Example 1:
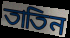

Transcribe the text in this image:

তাতিন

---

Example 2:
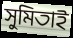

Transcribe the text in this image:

সুমিতাই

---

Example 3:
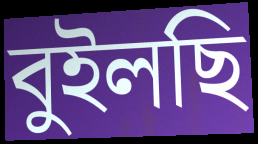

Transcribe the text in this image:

বুইলছি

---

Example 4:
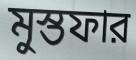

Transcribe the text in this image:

মুস্তফার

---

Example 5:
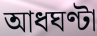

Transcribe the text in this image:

আধঘণ্টা